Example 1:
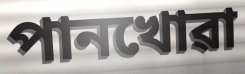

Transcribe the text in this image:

পানখোৱা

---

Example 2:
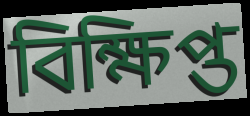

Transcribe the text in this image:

বিক্ষিপ্ত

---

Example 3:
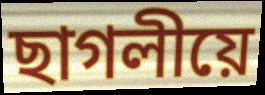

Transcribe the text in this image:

ছাগলীয়ে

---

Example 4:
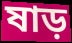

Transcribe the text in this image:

ষাড়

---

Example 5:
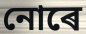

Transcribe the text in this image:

নোৰে